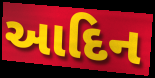
આદિન